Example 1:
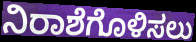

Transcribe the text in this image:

ನಿರಾಶೆಗೊಳಿಸಲು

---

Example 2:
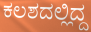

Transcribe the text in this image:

ಕಲಶದಲ್ಲಿದ್ದ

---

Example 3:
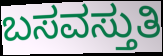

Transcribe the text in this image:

ಬಸವಸ್ತುತಿ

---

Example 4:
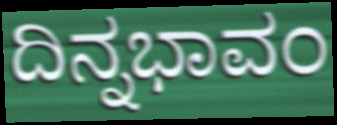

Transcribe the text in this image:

ದಿನ್ನಭಾವಂ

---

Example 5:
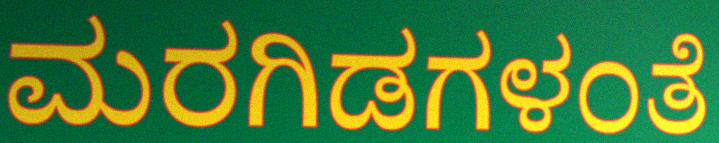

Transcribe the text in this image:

ಮರಗಿಡಗಳಂತೆ